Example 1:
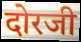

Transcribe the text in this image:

दोरजी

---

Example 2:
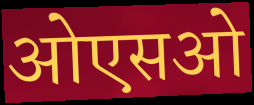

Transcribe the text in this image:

ओएसओ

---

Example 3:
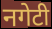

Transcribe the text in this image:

नगेटी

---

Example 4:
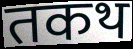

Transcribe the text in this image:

तकथ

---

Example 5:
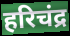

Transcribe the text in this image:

हरिचंद्र